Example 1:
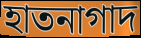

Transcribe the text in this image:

হাতনাগাদ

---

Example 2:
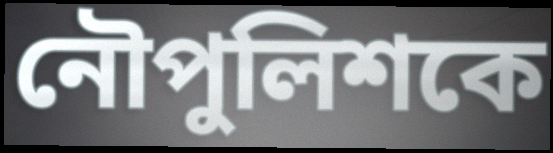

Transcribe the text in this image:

নৌপুলিশকে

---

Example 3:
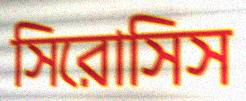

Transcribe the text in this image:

সিরোসিস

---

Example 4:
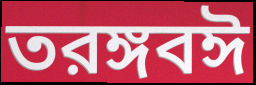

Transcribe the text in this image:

তরঙ্গবঈ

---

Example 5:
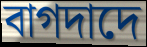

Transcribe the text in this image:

বাগদাদে